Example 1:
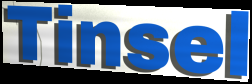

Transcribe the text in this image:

Tinsel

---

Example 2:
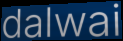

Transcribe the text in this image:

dalwai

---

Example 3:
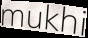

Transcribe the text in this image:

mukhi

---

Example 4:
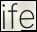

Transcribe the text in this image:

ife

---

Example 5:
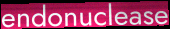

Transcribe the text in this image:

endonuclease